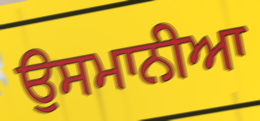
ਉਸਮਾਨੀਆ